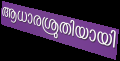
ആധാരശ്രുതിയായി